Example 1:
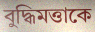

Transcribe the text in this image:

বুদ্ধিমত্তাকে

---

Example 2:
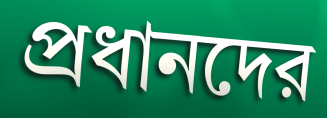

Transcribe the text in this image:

প্রধানদের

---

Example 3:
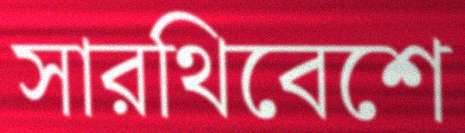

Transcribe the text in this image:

সারথিবেশে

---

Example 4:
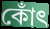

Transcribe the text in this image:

কোঁৎ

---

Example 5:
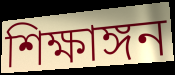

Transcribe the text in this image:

শিক্ষাঙ্গন